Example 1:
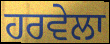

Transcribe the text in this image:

ਹਰਵੇਲਾ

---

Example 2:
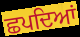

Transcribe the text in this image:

ਛਪਦਿਆਂ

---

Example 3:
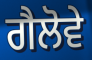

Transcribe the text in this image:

ਗੈਲੋਵੇ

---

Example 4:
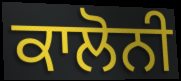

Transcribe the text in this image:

ਕਾਲੋਨੀ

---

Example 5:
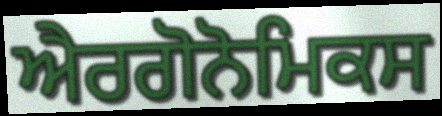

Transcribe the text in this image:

ਐਰਗੋਨੋਮਿਕਸ